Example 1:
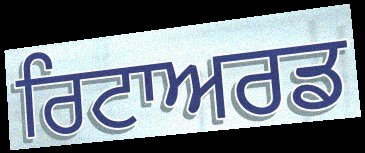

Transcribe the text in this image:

ਰਿਟਾਅਰਡ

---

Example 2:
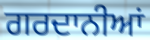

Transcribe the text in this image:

ਗਰਦਾਨੀਆਂ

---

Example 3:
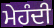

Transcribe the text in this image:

ਮੇਹੰਦੀ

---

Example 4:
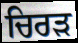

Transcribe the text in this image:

ਚਿਰੜ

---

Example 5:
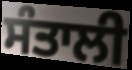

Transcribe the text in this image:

ਸੰਤਾਲੀ